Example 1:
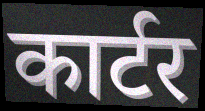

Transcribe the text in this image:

कार्टर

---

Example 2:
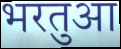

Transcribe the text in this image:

भरतुआ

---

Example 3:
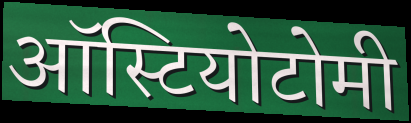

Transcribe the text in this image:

ऑस्टियोटोमी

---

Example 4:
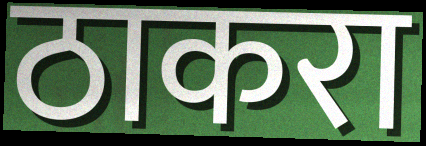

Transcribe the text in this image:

ठाकरा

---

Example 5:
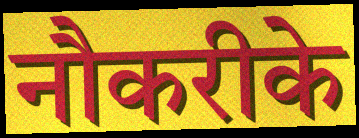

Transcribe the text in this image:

नौकरीके